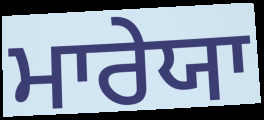
ਮਾਰੇਯਾ